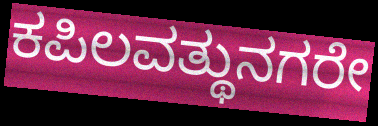
ಕಪಿಲವತ್ಥುನಗರೇ